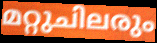
മറ്റുചിലരും